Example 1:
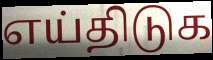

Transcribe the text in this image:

எய்திடுக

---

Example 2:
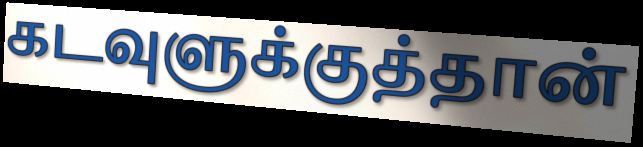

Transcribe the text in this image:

கடவுளுக்குத்தான்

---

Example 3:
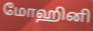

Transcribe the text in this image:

மோஹினி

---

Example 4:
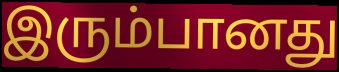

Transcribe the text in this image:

இரும்பானது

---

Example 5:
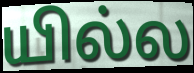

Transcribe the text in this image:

யில்ல